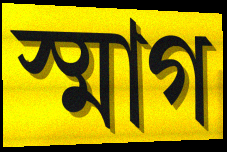
স্মাগ